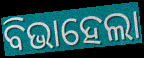
ବିଭାହେଲା